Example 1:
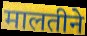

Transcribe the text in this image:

मालतीने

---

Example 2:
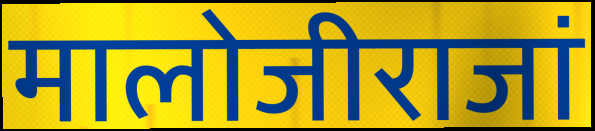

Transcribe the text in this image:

मालोजीराजां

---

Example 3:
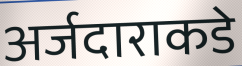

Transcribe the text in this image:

अर्जदाराकडे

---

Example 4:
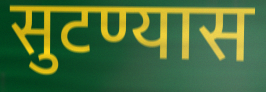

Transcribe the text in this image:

सुटण्यास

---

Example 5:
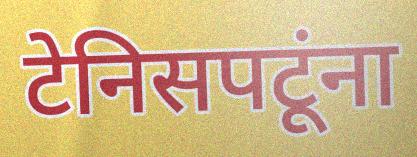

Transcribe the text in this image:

टेनिसपटूंना